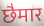
छैमार